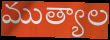
ముత్యాల